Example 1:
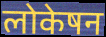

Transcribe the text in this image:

लोकेषन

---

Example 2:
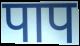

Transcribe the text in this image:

पाप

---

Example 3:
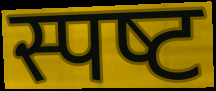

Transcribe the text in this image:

स्‍पष्‍ट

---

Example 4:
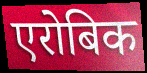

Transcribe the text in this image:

एरोबिक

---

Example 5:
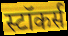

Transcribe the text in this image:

स्टॉकर्स